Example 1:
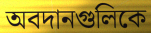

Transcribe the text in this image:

অবদানগুলিকে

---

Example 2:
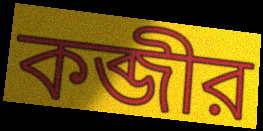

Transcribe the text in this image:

কব্জীর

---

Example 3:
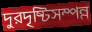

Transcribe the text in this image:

দুরদৃষ্টিসম্পন্ন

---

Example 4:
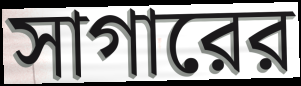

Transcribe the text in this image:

সাগারের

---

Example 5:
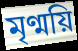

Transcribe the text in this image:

মৃণ্ময়ি